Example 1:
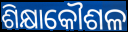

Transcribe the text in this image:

ଶିକ୍ଷାକୌଶଳ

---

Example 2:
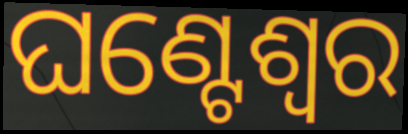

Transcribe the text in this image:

ଘଣ୍ଟେଶ୍ୱର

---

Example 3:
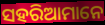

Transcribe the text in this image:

ସହରିଆମାନେ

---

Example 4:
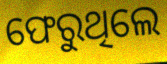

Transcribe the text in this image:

ଫେରୁଥିଲେ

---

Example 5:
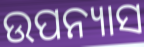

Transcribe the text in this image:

ଉପନ୍ୟାସ